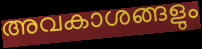
അവകാശങ്ങളും